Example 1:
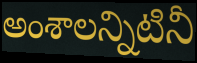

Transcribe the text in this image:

అంశాలన్నిటినీ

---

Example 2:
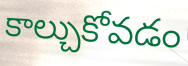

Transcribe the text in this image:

కాల్చుకోవడం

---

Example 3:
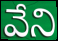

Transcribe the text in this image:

వేని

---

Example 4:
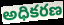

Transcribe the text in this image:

అధికరణ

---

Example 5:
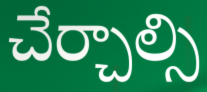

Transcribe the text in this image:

చేర్చాల్సి